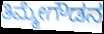
ತಿಮ್ಮೇಗೌಡನ